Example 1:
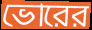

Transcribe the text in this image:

ভোরের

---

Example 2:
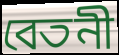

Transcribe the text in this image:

বেতনী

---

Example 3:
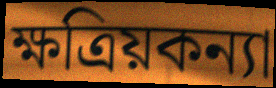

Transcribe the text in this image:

ক্ষত্রিয়কন্যা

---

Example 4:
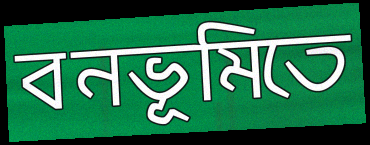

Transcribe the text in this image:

বনভূমিতে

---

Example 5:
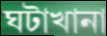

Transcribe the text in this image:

ঘটাখানা